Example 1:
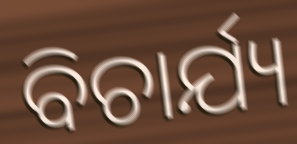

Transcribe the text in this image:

ବିଚାର୍ଯ୍ୟ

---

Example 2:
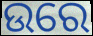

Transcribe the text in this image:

ଉରେ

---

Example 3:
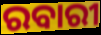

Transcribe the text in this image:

ରବାରୀ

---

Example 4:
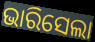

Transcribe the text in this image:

ଭାରିସେଲା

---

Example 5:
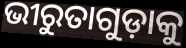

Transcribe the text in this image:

ଭୀରୁତାଗୁଡ଼ାକୁ